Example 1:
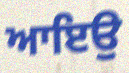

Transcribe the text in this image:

ਆਇਉ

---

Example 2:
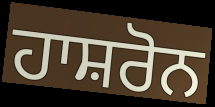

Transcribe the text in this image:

ਹਾਸ਼ਰੋਨ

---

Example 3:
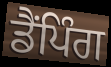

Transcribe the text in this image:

ਡੈਂਪਿੰਗ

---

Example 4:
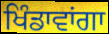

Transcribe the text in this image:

ਖਿੰਡਾਵਾਂਗਾ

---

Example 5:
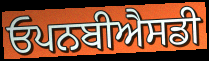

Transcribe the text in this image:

ਓਪਨਬੀਐਸਡੀ